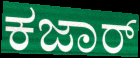
ಕಜಾರ್